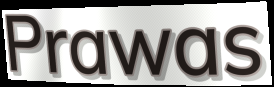
Prawas